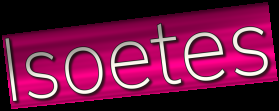
Isoetes